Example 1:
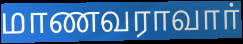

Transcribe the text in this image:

மாணவராவார்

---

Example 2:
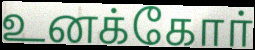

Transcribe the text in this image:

உனக்கோர்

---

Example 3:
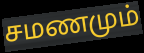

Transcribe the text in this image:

சமணமும்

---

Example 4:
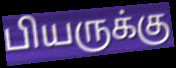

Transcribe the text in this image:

பியருக்கு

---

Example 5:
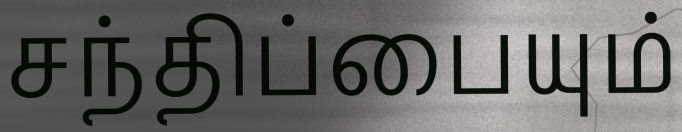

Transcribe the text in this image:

சந்திப்பையும்